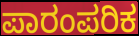
ಪಾರಂಪರಿಕ